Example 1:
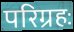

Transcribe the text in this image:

परिग्रहः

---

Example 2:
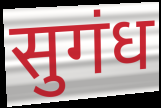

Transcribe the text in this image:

सुगंध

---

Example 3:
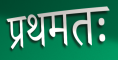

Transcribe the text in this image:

प्रथमतः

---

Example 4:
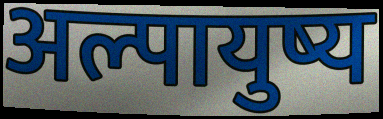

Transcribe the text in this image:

अल्पायुष्य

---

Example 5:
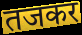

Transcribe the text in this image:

तजकर